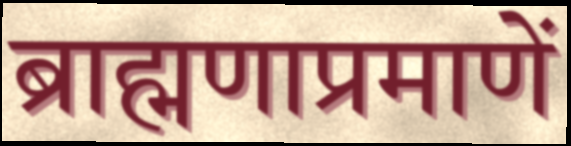
ब्राह्मणाप्रमाणें